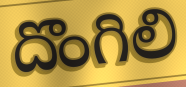
దొంగిలి